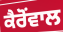
ਕੈਰੋਂਵਾਲ